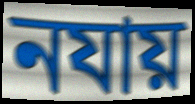
নযায়